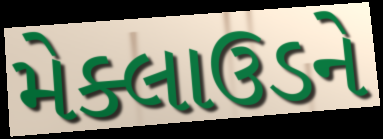
મેક્લાઉડને